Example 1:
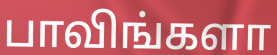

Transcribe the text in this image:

பாவிங்களா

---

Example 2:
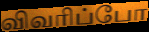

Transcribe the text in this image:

விவரிப்போ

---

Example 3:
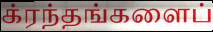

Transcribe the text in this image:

க்ரந்தங்களைப்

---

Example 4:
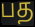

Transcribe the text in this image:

பத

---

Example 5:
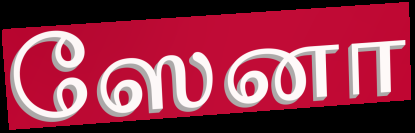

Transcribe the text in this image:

ஸேனா